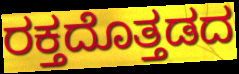
ರಕ್ತದೊತ್ತಡದ